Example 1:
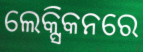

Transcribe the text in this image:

ଲେକ୍ସିକନରେ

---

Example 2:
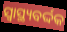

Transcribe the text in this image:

ସ୍ଵାସ୍ଥ୍ୟବର୍ଦ୍ଦକ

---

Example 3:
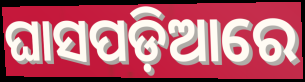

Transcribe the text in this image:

ଘାସପଡ଼ିଆରେ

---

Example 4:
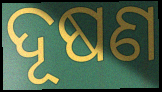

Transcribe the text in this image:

ଦୂଷଣ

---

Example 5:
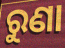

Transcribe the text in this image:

ରୁଣା